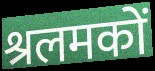
श्रलमकों